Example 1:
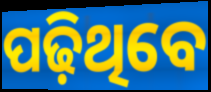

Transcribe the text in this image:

ପଢ଼ିଥିବେ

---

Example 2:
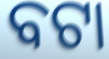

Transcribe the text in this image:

ବଟା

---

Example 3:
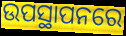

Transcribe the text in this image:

ଉପସ୍ଥାପନରେ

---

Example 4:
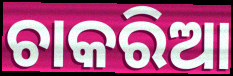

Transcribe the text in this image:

ଚାକରିଆ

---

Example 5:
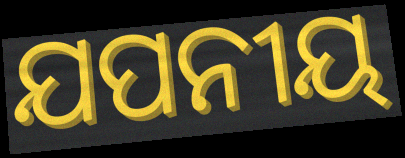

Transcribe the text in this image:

ଯପନୀୟ